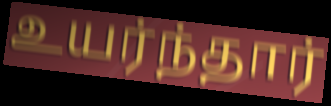
உயர்ந்தார்